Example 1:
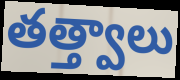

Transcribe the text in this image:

తత్త్వాలు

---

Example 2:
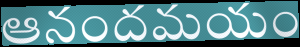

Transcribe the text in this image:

ఆనందమయం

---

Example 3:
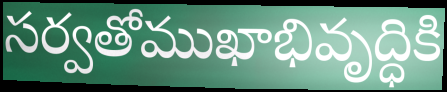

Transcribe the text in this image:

సర్వతోముఖాభివృద్ధికి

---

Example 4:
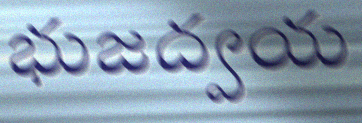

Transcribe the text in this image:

భుజద్వయ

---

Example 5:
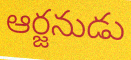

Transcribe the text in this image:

ఆర్జనుడు